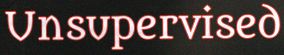
Unsupervised